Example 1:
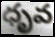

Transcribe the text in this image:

ధృవ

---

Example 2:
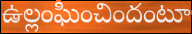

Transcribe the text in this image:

ఉల్లంఘించిందంటూ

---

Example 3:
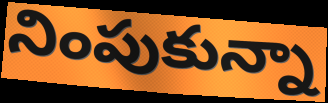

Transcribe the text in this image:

నింపుకున్నా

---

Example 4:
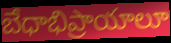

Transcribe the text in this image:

బేధాభిప్రాయాలూ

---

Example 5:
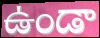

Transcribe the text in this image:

ఉండా